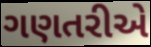
ગણતરીએ